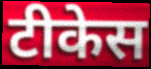
टीकेस